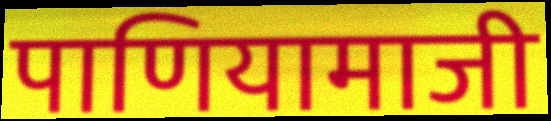
पाणियामाजी